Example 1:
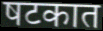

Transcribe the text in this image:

षटकात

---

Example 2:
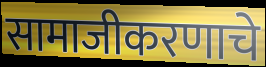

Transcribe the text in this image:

सामाजीकरणाचे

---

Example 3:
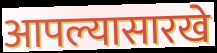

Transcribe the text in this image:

आपल्यासारखे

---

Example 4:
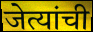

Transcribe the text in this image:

जेत्यांची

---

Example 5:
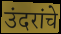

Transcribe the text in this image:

उंदरांचे